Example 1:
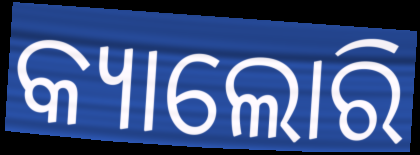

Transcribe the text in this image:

କ୍ୟାଲୋରି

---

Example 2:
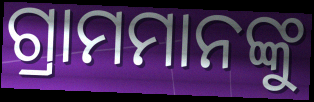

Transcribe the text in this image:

ଗ୍ରାମମାନଙ୍କୁ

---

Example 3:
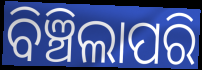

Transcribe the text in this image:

ବିଞ୍ଚିଲାପରି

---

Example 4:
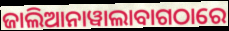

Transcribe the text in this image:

ଜାଲିଆନାୱାଲାବାଗଠାରେ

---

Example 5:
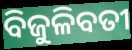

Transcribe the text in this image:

ବିଜୁଳିବତୀ